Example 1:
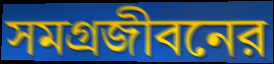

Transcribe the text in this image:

সমগ্রজীবনের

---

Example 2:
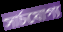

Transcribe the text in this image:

সার্চযোগ্য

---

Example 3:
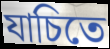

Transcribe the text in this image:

যাচিতে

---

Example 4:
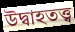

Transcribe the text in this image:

উদ্বাহতত্ত্ব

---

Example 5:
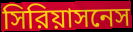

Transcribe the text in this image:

সিরিয়াসনেস